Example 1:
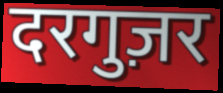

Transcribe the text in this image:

दरगुज़र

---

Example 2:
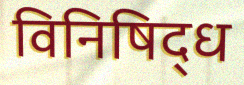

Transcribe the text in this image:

विनिषिद्ध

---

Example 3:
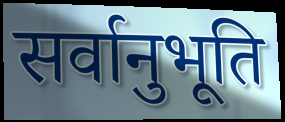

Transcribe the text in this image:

सर्वानुभूति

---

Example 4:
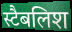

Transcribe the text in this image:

स्टैबलिश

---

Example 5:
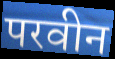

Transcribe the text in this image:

परवीन